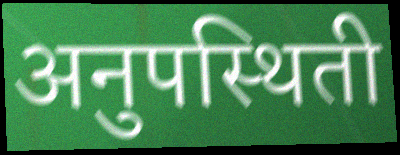
अनुपस्थिती